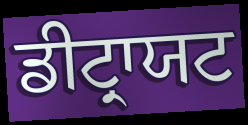
ਡੀਟ੍ਰਾਯਟ